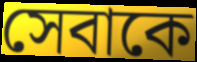
সেবাকে